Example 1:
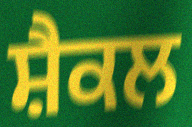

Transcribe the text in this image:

ਸ਼ੈਕਲ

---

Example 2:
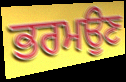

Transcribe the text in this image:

ਭਰਮਉਣ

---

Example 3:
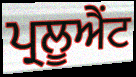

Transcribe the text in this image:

ਪ੍ਰਲੂਐਂਟ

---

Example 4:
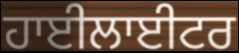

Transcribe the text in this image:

ਹਾਈਲਾਈਟਰ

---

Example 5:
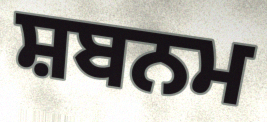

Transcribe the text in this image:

ਸ਼ਬਨਮ